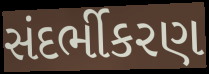
સંદર્ભીકરણ